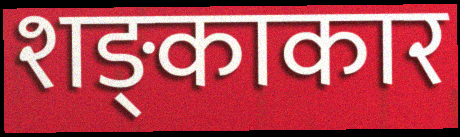
शङ्काकार